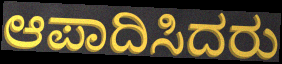
ಆಪಾದಿಸಿದರು